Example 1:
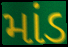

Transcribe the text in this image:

માંડ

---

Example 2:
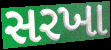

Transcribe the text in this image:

સરખા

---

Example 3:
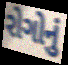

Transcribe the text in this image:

રોગોનું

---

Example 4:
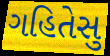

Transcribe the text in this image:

ગહિતેસુ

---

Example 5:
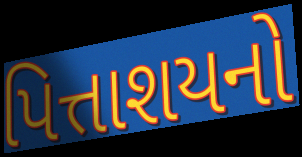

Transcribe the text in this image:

પિત્તાશયનો